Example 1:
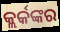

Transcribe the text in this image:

କ୍ଲର୍କଙ୍କର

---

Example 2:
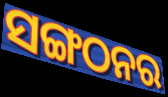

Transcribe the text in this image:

ସଙ୍ଗଠନର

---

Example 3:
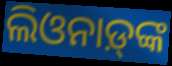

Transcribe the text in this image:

ଲିଓନାଡ଼୍‌ଙ୍କ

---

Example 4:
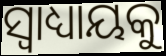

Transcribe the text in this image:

ସ୍ୱାଧ୍ୟାୟକୁ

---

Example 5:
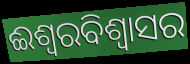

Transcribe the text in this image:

ଈଶ୍ୱରବିଶ୍ୱାସର